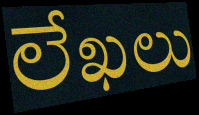
లేఖలు